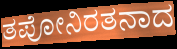
ತಪೋನಿರತನಾದ